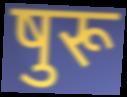
षुरू